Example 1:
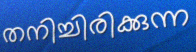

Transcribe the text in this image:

തനിച്ചിരിക്കുന്ന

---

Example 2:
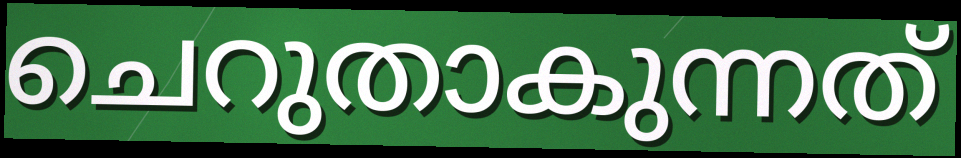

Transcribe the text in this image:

ചെറുതാകുന്നത്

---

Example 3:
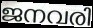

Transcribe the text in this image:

ജനവരി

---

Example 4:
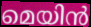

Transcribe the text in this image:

മെയിൻ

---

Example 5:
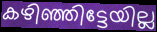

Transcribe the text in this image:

കഴിഞ്ഞിട്ടേയില്ല